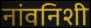
नांवनिशी